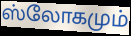
ஸ்லோகமும்